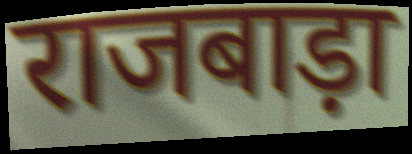
राजबाड़ा